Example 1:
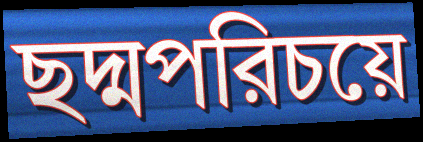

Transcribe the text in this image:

ছদ্মপরিচয়ে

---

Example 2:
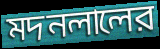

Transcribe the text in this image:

মদনলালের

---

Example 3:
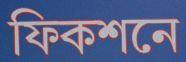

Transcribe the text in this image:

ফিকশনে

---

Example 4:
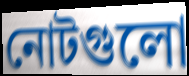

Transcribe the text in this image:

নোটগুলো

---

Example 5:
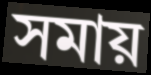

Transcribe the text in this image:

সমায়